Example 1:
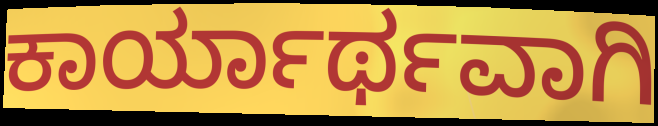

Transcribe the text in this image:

ಕಾರ್ಯಾರ್ಥವಾಗಿ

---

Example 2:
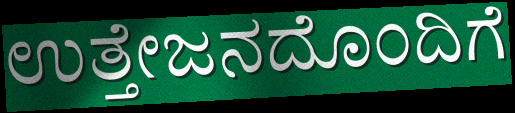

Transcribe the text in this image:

ಉತ್ತೇಜನದೊಂದಿಗೆ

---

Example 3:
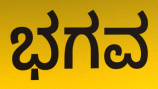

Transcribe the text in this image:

ಭಗವ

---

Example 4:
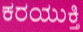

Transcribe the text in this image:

ಕರಯುಕ್ತಿ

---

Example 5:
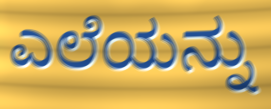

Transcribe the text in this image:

ಎಲೆಯನ್ನು